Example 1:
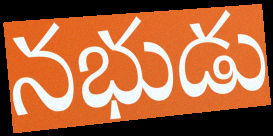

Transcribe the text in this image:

నభుడు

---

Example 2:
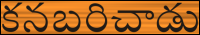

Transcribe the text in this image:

కనబరిచాడు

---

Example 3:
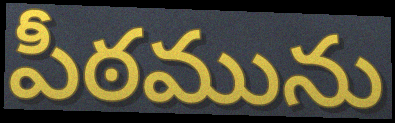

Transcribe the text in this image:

పీఠమును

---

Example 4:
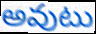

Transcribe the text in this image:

అవుటు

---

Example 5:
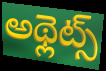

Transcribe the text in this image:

అథ్లెట్స్